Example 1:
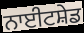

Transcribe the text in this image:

ਨਾਈਟਸ਼ੇਡ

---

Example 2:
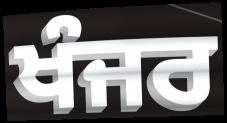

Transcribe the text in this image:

ਖੰਜਰ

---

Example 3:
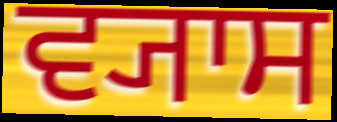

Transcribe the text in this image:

ਵ੍ਯਾਸ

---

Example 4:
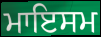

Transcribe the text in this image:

ਮਾਇਸਮ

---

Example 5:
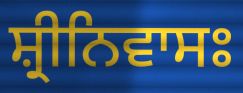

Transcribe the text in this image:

ਸ਼੍ਰੀਨਿਵਾਸਃ